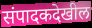
संपादकदेखील